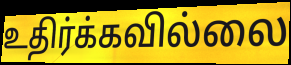
உதிர்க்கவில்லை